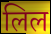
लिल